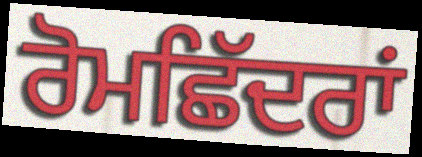
ਰੋਮਛਿੱਦਰਾਂ